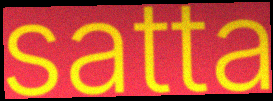
satta